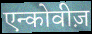
एन्कोवीज़